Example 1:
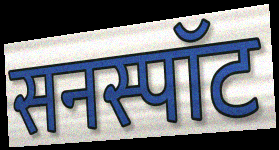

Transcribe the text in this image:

सनस्पॉट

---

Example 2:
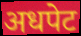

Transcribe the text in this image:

अधपेट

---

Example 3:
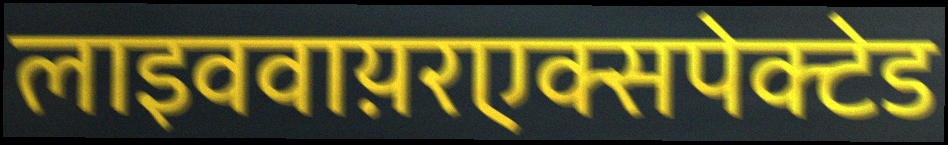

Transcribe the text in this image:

लाइववाय़रएक्सपेक्टेड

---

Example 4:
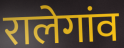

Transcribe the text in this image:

रालेगांव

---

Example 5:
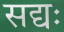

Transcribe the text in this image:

सद्यः